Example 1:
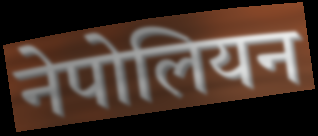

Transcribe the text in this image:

नेपोलियन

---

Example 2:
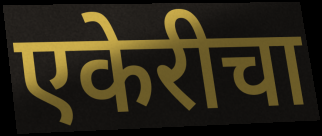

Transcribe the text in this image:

एकेरीचा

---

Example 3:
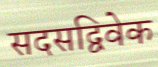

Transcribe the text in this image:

सदसद्विवेक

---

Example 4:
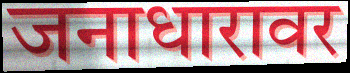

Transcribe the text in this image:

जनाधारावर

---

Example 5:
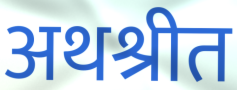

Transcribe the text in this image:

अथश्रीत